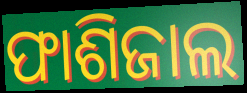
ଫାଶିଜାଲ